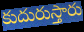
కుదురుస్తారు